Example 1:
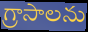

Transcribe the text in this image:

గ్రాసాలను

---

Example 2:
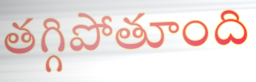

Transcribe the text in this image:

తగ్గిపోతూంది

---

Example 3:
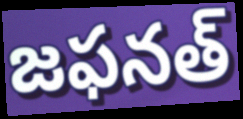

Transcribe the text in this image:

జఫనత్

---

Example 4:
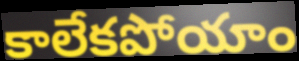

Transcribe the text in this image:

కాలేకపోయాం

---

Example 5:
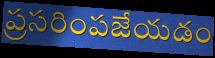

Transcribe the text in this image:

ప్రసరింపజేయడం